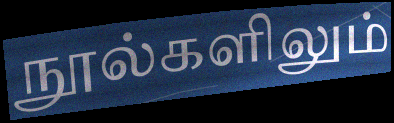
நூல்களிலும்